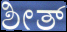
ಶೀತ್